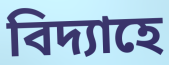
বিদ্যাহে